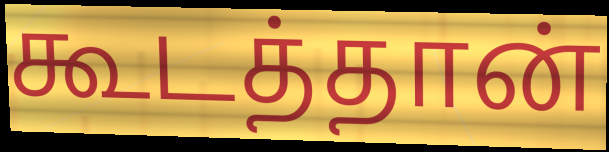
கூடத்தான்